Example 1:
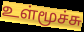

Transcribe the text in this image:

உள்மூச்சு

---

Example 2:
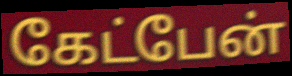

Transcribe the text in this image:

கேட்பேன்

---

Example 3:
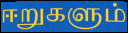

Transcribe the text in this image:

ஈறுகளும்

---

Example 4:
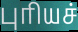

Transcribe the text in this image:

புரியச்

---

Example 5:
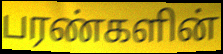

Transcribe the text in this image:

பரண்களின்